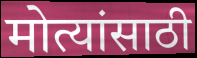
मोत्यांसाठी